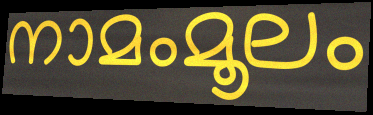
നാമംമൂലം